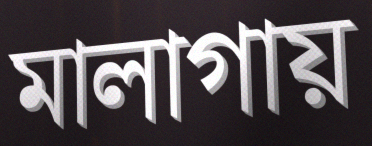
মালাগায়